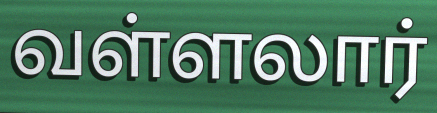
வள்ளலார்